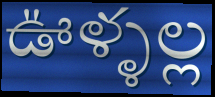
ఊళ్ళల్ల